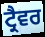
ਟ੍ਰੈਵਰ